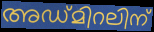
അഡ്മിറലിന്